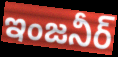
ఇంజనీర్